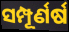
ସମ୍ପୂର୍ଣର୍ଷ